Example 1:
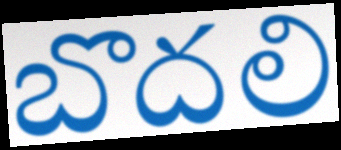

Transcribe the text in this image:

బొదలి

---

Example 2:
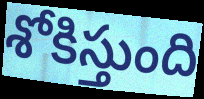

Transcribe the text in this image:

శోకిస్తుంది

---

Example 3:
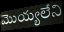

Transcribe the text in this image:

మొయ్యలేని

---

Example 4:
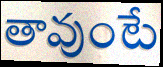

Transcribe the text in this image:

తావుంటే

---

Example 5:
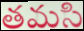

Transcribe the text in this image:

తమసి